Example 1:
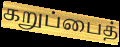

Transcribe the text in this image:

கறுப்பைத்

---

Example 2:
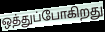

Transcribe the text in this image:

ஒத்துப்போகிறது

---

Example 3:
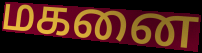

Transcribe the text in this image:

மகனை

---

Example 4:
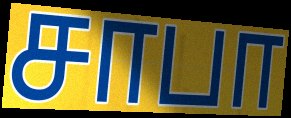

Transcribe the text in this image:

சாபா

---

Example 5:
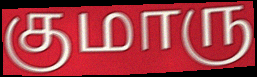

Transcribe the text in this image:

குமாரு